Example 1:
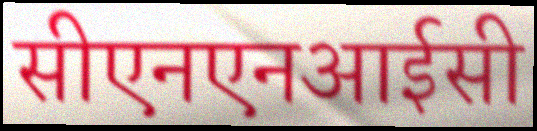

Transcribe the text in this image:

सीएनएनआईसी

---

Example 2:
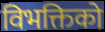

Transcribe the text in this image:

विभक्तिको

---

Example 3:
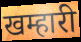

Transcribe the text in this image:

खम्हारी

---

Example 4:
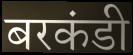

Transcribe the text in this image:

बरकंडी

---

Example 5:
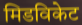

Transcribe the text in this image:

मिडविकेट